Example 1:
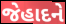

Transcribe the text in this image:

જેહાદને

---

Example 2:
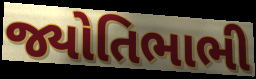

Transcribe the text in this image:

જ્યોતિભાભી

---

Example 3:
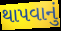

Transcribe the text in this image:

થાપવાનું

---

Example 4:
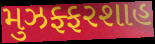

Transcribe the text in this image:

મુઝફ્ફરશાહ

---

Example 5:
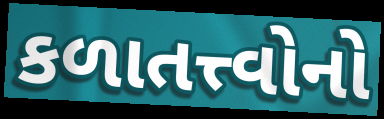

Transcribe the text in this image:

કળાતત્ત્વોનો